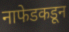
नाफेडकडून